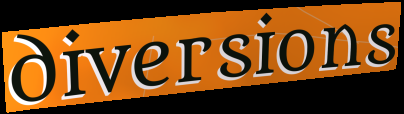
diversions